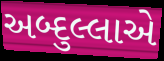
અબ્દુલ્લાએ